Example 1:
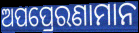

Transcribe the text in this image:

ଅପପ୍ରେରଣାମାନ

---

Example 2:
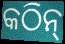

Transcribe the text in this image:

କଠିନ୍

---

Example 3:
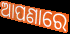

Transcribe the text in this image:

ଆପଣାରେ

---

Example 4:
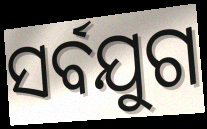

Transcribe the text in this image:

ସର୍ବଯୁଗ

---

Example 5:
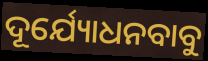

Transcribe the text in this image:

ଦୂର୍ଯ୍ୟୋଧନବାବୁ